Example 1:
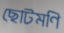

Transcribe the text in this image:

ছোটমণি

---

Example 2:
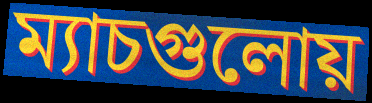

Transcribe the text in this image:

ম্যাচগুলোয়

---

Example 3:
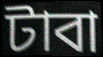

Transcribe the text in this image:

টাবা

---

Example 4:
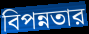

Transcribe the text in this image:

বিপন্নতার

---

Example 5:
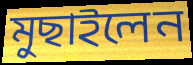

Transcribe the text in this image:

মুছাইলেন